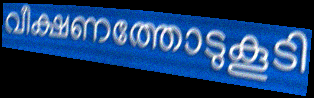
വീക്ഷണത്തോടുകൂടി